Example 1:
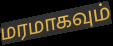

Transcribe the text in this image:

மரமாகவும்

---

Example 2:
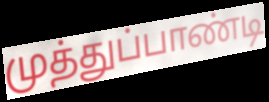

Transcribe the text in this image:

முத்துப்பாண்டி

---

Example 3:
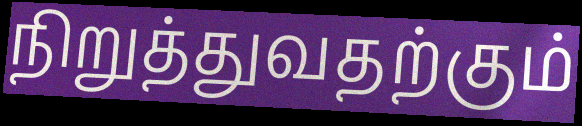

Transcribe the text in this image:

நிறுத்துவதற்கும்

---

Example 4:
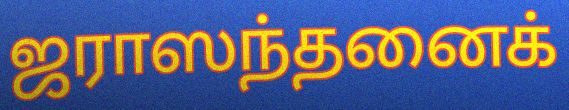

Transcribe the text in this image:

ஜராஸந்தனைக்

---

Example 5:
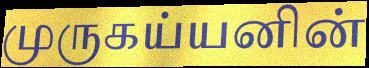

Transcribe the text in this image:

முருகய்யனின்